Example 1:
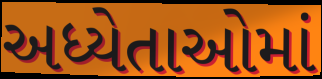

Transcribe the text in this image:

અધ્યેતાઓમાં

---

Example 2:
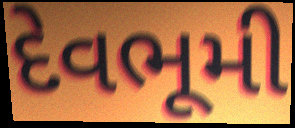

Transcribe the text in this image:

દેવભૂમી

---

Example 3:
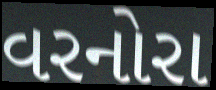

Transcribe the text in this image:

વરનોરા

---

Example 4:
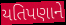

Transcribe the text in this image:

યતિપણાને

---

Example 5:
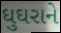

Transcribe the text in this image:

ઘુઘરાને